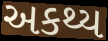
અકથ્ય